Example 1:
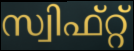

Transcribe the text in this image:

സ്വിഫ്റ്റ്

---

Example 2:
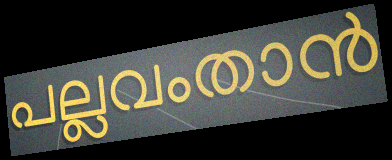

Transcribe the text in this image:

പല്ലവംതാൻ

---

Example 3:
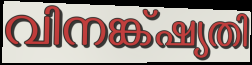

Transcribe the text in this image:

വിനങ്ക്ഷ്യതി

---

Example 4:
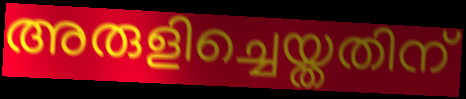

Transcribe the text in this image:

അരുളിച്ചെയ്തതിന്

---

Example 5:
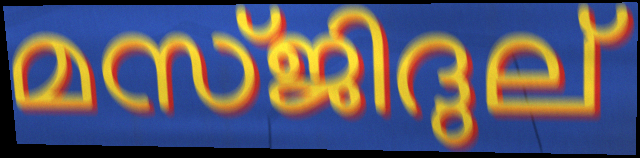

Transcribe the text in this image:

മസ്ജിദുല്